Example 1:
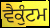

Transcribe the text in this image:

ਵੈਕੁੰਟਮ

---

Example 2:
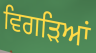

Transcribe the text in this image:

ਵਿਗੜਿਆਂ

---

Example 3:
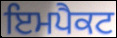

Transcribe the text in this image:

ਇਮਪੈਕਟ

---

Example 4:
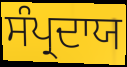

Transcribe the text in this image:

ਸੰਪ੍ਰਦਾਯ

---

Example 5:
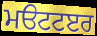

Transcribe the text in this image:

ਮੳਟਟੲਰ